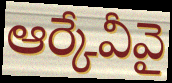
ఆర్కేవీవై